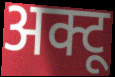
अक्टू